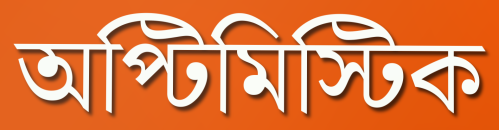
অপ্টিমিস্টিক